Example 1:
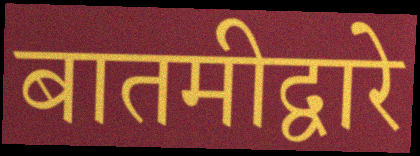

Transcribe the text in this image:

बातमीद्वारे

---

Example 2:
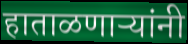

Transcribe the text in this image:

हाताळणाऱ्यांनी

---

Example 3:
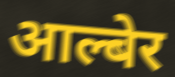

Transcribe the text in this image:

आल्बेर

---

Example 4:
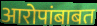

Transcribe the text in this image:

आरोपांबाबत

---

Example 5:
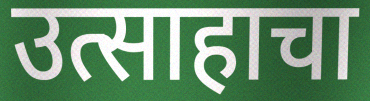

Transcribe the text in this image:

उत्साहाचा